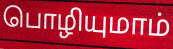
பொழியுமாம்